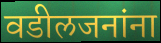
वडीलजनांना